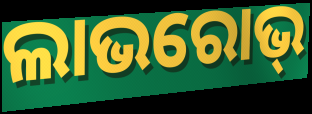
ଲାଭରୋଭ୍